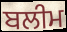
ਬਲੀਮ